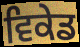
ਵਿਕੇਡ